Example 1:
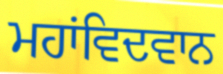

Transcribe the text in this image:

ਮਹਾਂਵਿਦਵਾਨ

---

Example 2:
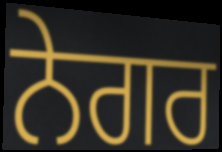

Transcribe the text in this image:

ਨੇਗਰ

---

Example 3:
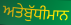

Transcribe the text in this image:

ਅਤੇਬੁੱਧੀਮਾਨ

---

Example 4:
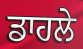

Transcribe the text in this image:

ਡਾਹਲੇ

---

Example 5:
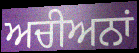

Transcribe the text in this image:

ਅਚੀਅਨਾਂ